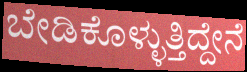
ಬೇಡಿಕೊಳ್ಳುತ್ತಿದ್ದೇನೆ